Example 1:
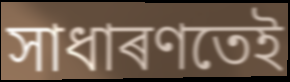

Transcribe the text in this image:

সাধাৰণতেই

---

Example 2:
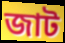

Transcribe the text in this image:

জাট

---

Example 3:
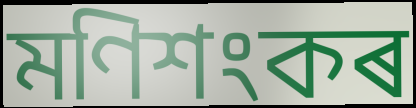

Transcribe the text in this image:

মণিশংকৰ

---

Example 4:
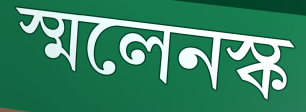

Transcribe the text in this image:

স্মলেনস্ক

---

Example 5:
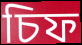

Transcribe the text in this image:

চিফ